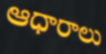
ఆధారాలు